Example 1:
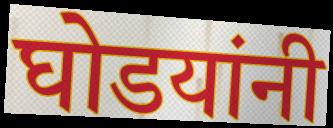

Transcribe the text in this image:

घोडयांनी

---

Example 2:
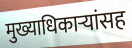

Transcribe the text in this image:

मुख्याधिकाऱ्यांसह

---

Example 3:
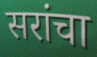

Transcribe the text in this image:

सरांचा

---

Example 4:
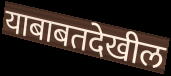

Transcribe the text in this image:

याबाबतदेखील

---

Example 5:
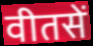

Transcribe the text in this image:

वीतसें